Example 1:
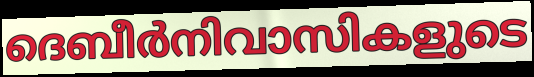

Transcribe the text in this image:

ദെബീർനിവാസികളുടെ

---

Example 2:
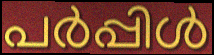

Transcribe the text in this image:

പർപ്പിൾ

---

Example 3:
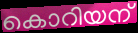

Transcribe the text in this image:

കൊറിയന്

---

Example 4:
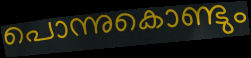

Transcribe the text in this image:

പൊന്നുകൊണ്ടും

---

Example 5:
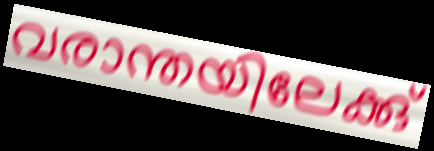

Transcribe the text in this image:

വരാന്തയിലേക്കു്